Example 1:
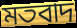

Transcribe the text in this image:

মতবাদ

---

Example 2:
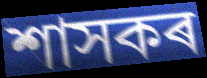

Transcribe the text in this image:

শাসকৰ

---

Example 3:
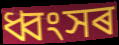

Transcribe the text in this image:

ধ্বংসৰ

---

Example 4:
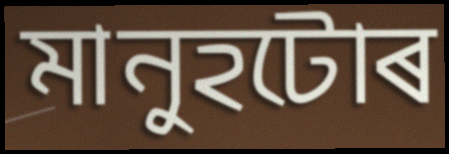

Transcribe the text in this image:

মানুহটোৰ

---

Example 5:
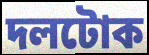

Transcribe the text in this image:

দলটোক